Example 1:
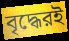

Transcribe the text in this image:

বৃদ্ধেরই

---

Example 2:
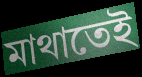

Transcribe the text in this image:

মাথাতেই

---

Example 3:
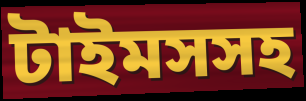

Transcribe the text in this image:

টাইমসসহ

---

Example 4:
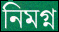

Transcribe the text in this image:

নিমগ্ন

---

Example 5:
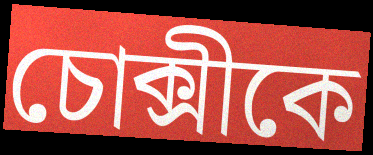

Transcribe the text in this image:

চোক্সীকে